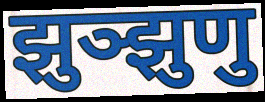
झुञ्झुणु